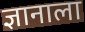
ज्ञानाला